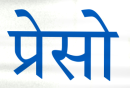
प्रेसो